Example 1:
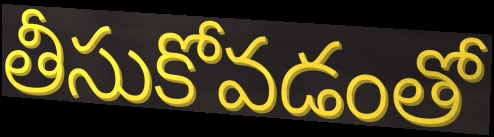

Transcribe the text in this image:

తీసుకోవడంతో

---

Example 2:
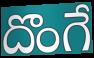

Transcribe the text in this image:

దొంగే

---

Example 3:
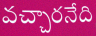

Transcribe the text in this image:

వచ్చారనేది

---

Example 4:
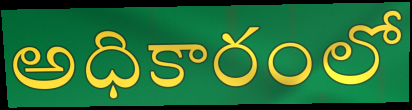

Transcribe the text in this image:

అధికారంలో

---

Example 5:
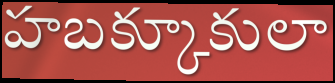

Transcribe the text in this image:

హబక్కూకులా